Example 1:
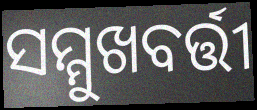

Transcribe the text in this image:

ସମ୍ମୁଖବର୍ତ୍ତୀ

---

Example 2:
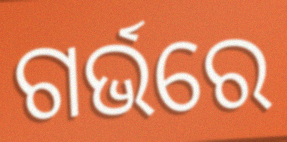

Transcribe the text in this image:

ଗର୍ଭରେ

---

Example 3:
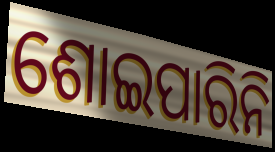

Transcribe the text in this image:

ଶୋଇପାରିନି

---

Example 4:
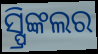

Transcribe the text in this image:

ସ୍ପ୍ରିଙ୍କଲର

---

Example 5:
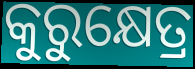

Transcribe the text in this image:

କୁରୁକ୍ଷେତ୍ର